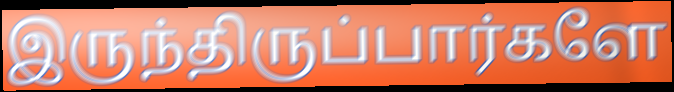
இருந்திருப்பார்களே